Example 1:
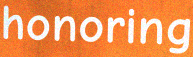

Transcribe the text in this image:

honoring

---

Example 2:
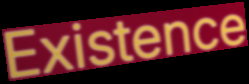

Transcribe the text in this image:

Existence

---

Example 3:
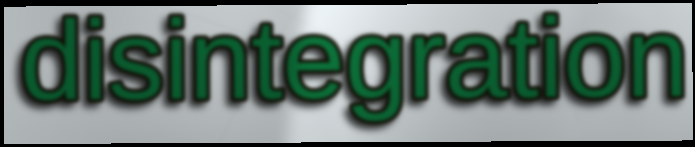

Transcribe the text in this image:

disintegration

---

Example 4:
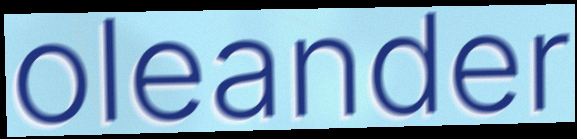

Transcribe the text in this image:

oleander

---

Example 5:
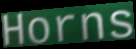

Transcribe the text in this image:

Horns